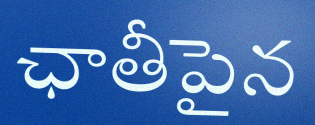
ఛాతీపైన